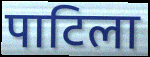
पाटिला